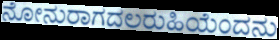
ನೋನುರಾಗದಲರುಹಿಯೆಂದನು